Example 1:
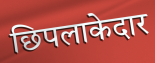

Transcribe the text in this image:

छिपलाकेदार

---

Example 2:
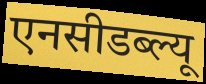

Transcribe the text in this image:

एनसीडब्ल्यू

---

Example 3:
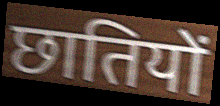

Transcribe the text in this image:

छातियों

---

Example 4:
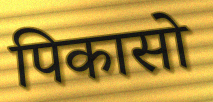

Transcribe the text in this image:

पिकासो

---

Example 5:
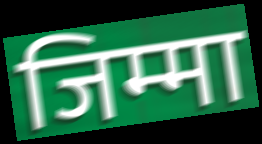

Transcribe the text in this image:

जिम्मा